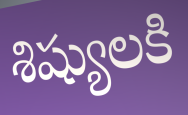
శిష్యులకి